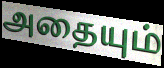
அதையும்